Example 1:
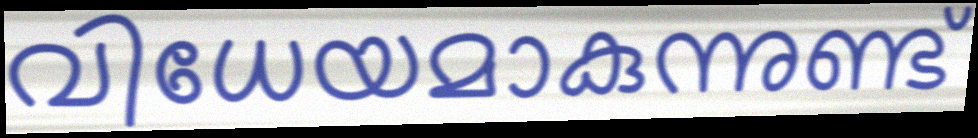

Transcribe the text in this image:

വിധേയമാകുന്നുണ്ട്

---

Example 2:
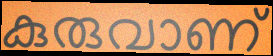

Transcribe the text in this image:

കുരുവാണ്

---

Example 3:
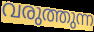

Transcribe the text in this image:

വരുത്തുന്ന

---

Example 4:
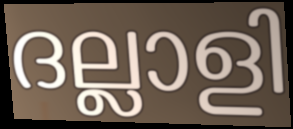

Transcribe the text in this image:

ദല്ലാളി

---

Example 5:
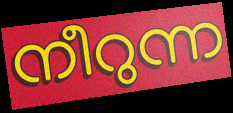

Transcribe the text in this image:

നീറുന്ന